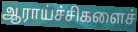
ஆராய்ச்சிகளைச்